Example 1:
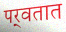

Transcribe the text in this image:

पर्वतात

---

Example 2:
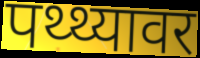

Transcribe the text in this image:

पथ्थ्यावर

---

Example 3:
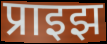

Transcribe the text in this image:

प्राइझ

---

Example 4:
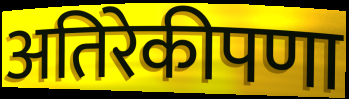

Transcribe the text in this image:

अतिरेकीपणा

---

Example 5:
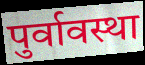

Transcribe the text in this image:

पुर्वावस्था